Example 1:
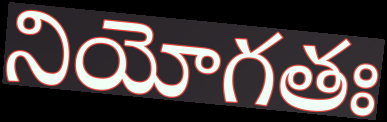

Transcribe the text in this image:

నియోగతః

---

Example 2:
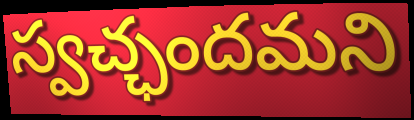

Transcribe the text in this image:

స్వచ్ఛందమని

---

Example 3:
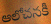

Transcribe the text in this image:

ఆలోచనకీ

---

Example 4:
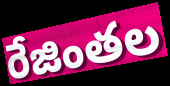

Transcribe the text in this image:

రేజింతల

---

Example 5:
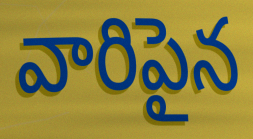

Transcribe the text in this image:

వారిపైన